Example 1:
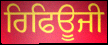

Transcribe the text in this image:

ਰਿਫਿਊਜੀ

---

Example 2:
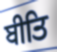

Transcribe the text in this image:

ਬੀਤਿ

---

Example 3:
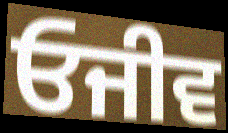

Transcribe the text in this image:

ਓਜੀਵ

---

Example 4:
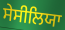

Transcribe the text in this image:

ਸੇਸੀਲਿਯਾ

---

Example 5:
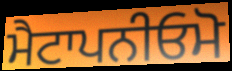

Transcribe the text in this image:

ਮੈਟਾਪਨੀਓਮੋ